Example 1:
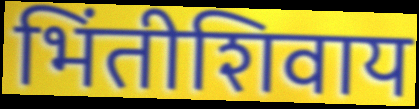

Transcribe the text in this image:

भिंतीशिवाय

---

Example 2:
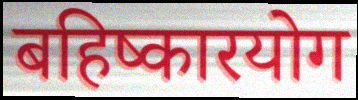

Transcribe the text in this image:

बहिष्कारयोग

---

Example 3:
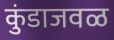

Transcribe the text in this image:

कुंडाजवळ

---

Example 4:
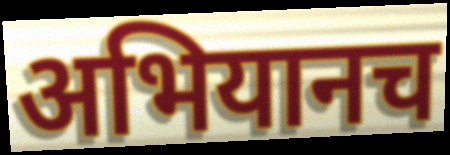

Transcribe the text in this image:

अभियानच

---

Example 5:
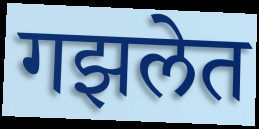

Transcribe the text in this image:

गझलेत